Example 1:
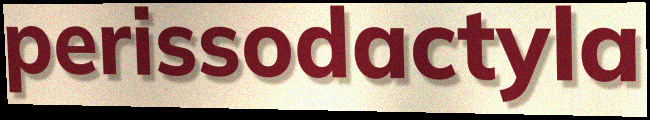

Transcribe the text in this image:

perissodactyla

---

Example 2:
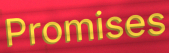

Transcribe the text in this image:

Promises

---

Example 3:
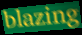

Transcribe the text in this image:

blazing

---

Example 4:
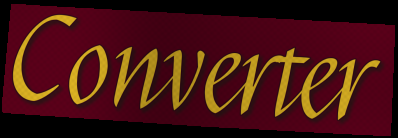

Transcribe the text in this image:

Converter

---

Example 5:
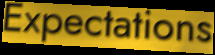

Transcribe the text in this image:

Expectations